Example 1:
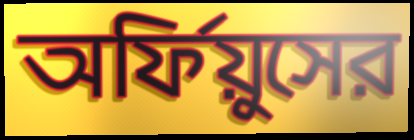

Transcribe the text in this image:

অর্ফিয়ুসের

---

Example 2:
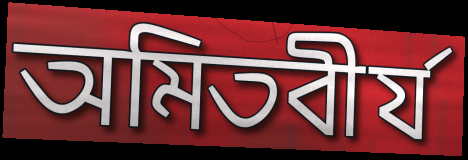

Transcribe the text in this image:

অমিতবীর্য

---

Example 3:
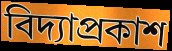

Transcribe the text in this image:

বিদ্যাপ্রকাশ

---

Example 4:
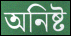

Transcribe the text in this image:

অনিষ্ট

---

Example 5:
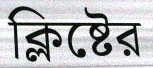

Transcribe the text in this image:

ক্লিষ্টের